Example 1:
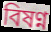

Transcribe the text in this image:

বিষণ্ন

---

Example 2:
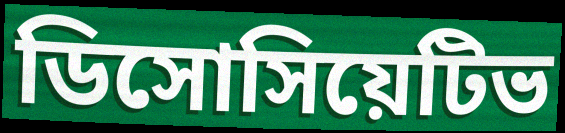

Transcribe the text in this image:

ডিসোসিয়েটিভ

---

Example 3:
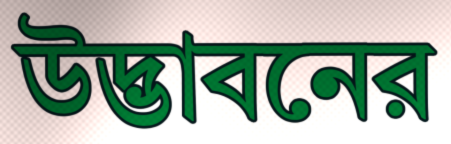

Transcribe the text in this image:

উদ্ভাবনের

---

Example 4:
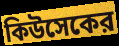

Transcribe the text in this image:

কিউসেকের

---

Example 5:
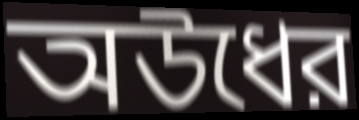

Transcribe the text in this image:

অউধের